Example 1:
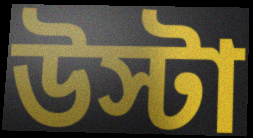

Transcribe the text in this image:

উস্টা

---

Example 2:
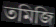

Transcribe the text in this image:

তমিজি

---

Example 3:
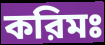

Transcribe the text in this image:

করিমঃ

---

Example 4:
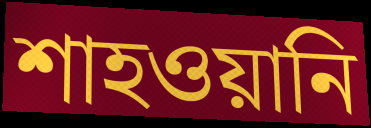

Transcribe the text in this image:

শাহওয়ানি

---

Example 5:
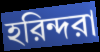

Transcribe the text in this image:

হরিন্দরা